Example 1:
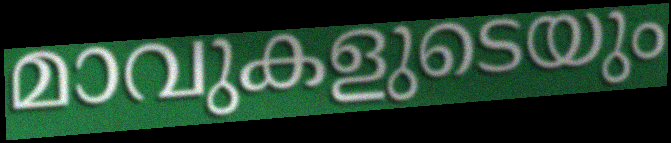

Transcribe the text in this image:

മാവുകളുടെയും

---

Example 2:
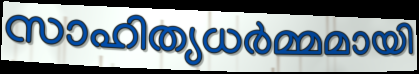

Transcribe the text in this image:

സാഹിത്യധർമ്മമായി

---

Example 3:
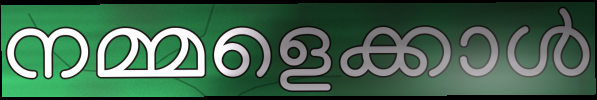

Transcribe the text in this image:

നമ്മളെക്കാൾ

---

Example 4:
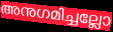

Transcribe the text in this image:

അനുഗമിച്ചല്ലോ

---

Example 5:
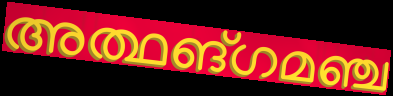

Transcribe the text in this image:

അത്ഥങ്ഗമഞ്ച